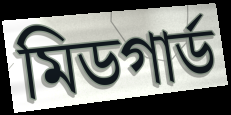
মিডগার্ড